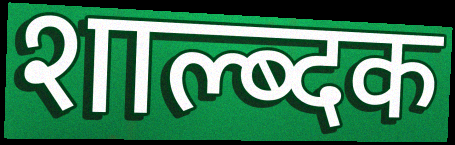
शाल्ब्दक